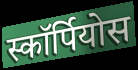
स्कॉर्पियोस